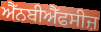
ਐੱਨਬੀਐੱਫਸੀਜ਼